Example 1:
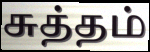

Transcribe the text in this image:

சுத்தம்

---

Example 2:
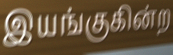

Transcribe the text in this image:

இயங்குகின்ற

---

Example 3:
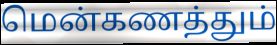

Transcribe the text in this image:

மென்கணத்தும்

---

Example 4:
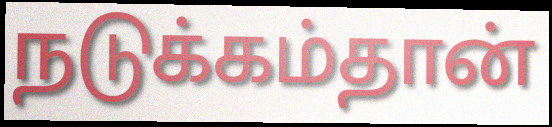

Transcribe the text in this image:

நடுக்கம்தான்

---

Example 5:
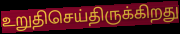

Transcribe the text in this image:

உறுதிசெய்திருக்கிறது